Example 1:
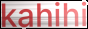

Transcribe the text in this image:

kahihi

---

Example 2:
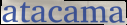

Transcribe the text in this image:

atacama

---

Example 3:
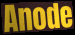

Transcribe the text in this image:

Anode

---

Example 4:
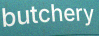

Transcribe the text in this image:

butchery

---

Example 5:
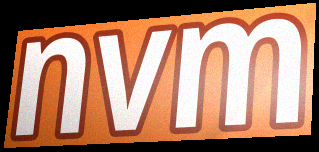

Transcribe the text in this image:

nvm